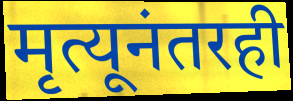
मृत्यूनंतरही